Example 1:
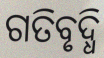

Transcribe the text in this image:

ଗତିବୃଦ୍ଧି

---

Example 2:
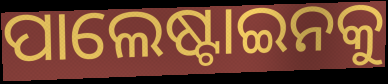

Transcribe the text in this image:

ପାଲେଷ୍ଟାଇନକୁ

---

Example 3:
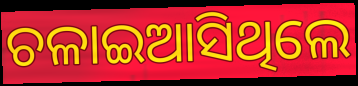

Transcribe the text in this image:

ଚଳାଇଆସିଥିଲେ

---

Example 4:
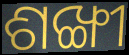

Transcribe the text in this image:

ଶଙ୍ଖୀ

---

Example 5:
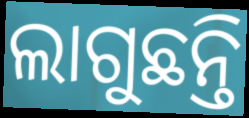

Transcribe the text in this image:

ଲାଗୁଛନ୍ତି